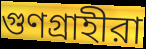
গুণগ্রাহীরা